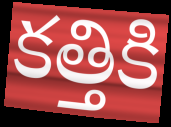
కత్తికి